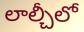
లాల్చీలో